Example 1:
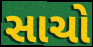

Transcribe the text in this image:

સાચો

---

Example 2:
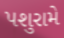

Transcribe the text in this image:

પશુરામે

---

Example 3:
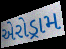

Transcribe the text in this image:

એરોડ્રામ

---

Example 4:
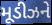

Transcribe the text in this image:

મૂડીઝને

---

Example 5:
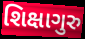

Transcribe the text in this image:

શિક્ષાગુરુ